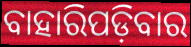
ବାହାରିପଡ଼ିବାର